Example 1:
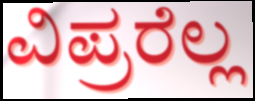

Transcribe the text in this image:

ವಿಪ್ರರೆಲ್ಲ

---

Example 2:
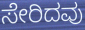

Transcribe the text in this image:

ಸೇರಿದವು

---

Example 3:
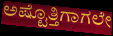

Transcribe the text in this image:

ಅಷ್ಟೊತ್ತಿಗಾಗಲೇ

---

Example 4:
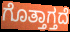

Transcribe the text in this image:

ಗೊತ್ತಾಗ್ತದೆ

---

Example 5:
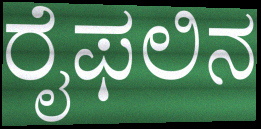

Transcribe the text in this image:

ರೈಫಲಿನ